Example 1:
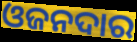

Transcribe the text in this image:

ଓଜନଦାର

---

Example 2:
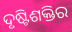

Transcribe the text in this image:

ଦୃଷ୍ଟିଶକ୍ତିର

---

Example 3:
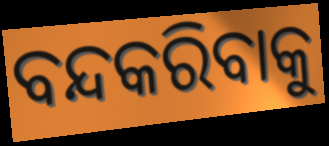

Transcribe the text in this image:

ବନ୍ଦକରିବାକୁ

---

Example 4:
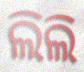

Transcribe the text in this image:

ଲିଲି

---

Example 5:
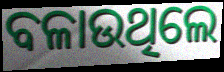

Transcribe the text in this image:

ବଳାଉଥିଲେ